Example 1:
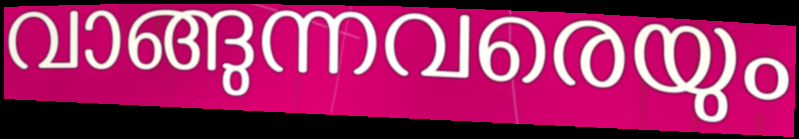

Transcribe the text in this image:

വാങ്ങുന്നവരെയും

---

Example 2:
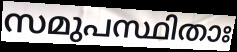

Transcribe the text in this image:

സമുപസ്ഥിതാഃ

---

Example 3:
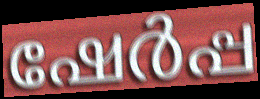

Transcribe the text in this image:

ഷേർപ്പ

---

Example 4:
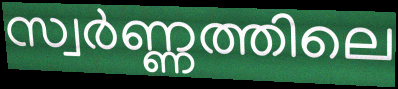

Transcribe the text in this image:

സ്വർണ്ണത്തിലെ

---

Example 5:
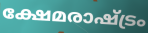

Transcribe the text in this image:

ക്ഷേമരാഷ്ട്രം